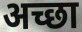
अच्छा